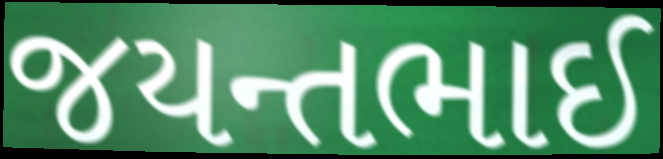
જયન્તભાઈ